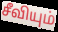
சீவியும்